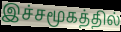
இச்சமூகத்தில்